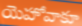
యెహోవాకూ